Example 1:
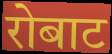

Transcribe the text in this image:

रोबाट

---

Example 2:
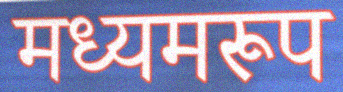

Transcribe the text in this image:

मध्यमरूप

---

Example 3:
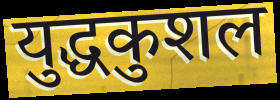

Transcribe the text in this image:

युद्धकुशल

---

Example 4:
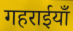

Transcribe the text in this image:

गहराईयाँ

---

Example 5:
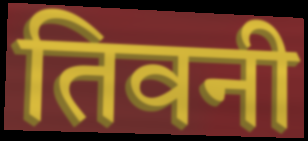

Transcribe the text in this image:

तिवनी